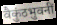
वैकुंठभुवनीं